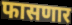
फासणार